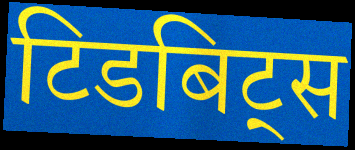
टिडबिट्स